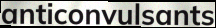
anticonvulsants